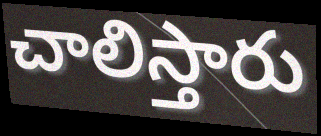
చాలిస్తారు